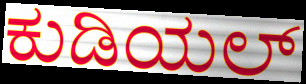
ಕುಡಿಯಲ್